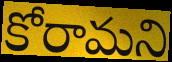
కోరామని